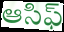
ఆసిఫ్